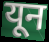
यून